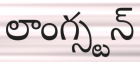
లాంగ్స్టన్